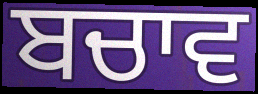
ਬਚਾਵ